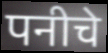
पनीचे